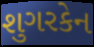
શુગરકેન